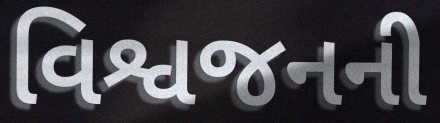
વિશ્વજનની